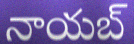
నాయబ్